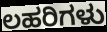
ಲಹರಿಗಳು